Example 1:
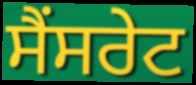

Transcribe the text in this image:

ਸੈਂਸਰੇਟ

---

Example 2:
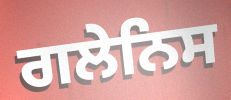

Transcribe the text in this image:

ਗਲੇਨਿਸ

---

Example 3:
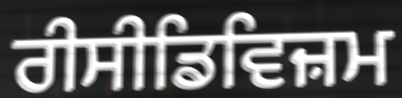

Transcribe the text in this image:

ਰੀਸੀਡਿਵਿਜ਼ਮ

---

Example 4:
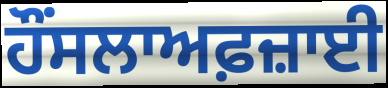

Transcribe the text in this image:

ਹੌਂਸਲਾਅਫ਼ਜ਼ਾਈ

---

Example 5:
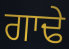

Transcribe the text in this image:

ਗਾਢੇ